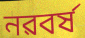
নৱবৰ্ষ